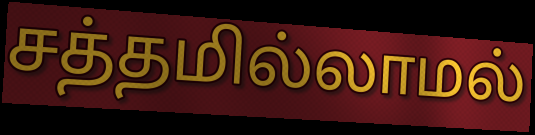
சத்தமில்லாமல்